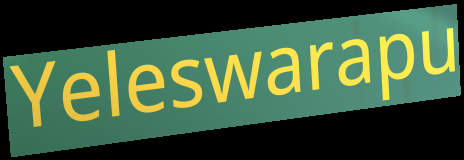
Yeleswarapu